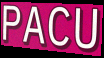
PACU